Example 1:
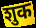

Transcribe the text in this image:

शुक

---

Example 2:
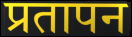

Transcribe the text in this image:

प्रतापन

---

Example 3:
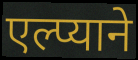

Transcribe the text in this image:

एल्प्याने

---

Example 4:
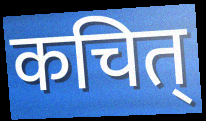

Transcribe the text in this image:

कचित्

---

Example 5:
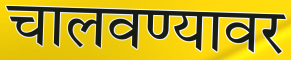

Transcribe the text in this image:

चालवण्यावर